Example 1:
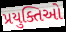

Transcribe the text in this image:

પ્રયુક્તિઓ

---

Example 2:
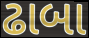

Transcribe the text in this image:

ઢાબા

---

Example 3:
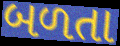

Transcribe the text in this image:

બળતા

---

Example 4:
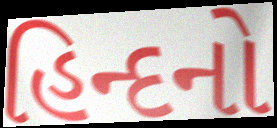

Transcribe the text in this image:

હિન્દનો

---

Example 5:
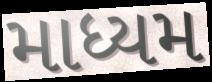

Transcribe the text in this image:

માધ્યમ